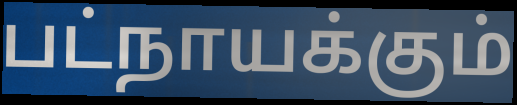
பட்நாயக்கும்